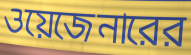
ওয়েজেনারের